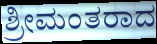
ಶ್ರೀಮಂತರಾದ